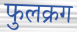
फुलक्रग